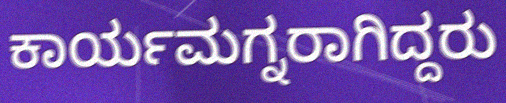
ಕಾರ್ಯಮಗ್ನರಾಗಿದ್ದರು